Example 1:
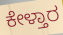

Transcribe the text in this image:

ಕೇಳ್ತಾರ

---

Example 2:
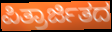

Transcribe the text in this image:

ಪಿತ್ರಾರ್ಜಿತದ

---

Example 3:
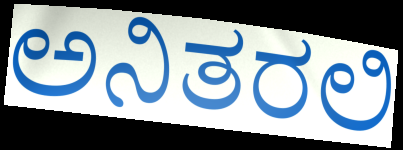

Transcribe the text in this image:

ಅನಿತರಲಿ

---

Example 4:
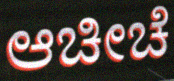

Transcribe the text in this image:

ಆಚೀಚೆ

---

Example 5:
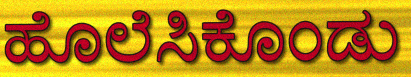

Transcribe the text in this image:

ಹೊಲೆಸಿಕೊಂಡು